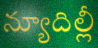
న్యూదిల్లీ